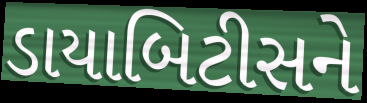
ડાયાબિટીસને